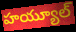
హయ్యూల్